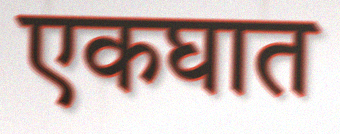
एकघात